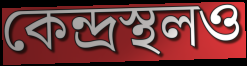
কেন্দ্রস্থলও